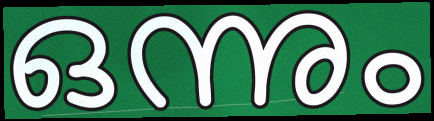
ഒന്നും